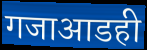
गजाआडही